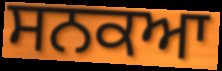
ਸਨਕਆ